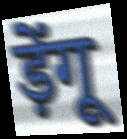
ड़ेंगू